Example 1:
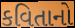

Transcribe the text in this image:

કવિતાનો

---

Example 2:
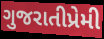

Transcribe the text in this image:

ગુજરાતીપ્રેમી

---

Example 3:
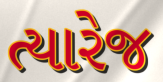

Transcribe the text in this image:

ત્યારેજ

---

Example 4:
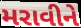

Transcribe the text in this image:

મરાવીને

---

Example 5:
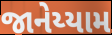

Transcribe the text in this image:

જાનેય્યામ